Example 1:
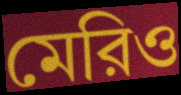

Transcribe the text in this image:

মেরিও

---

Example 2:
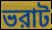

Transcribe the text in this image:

ভরাট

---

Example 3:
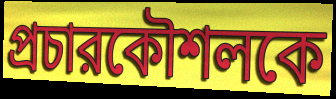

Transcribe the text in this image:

প্রচারকৌশলকে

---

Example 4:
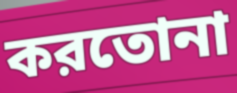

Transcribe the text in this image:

করতোনা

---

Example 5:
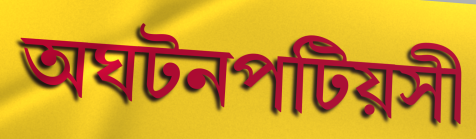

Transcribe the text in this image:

অঘটনপটিয়সী